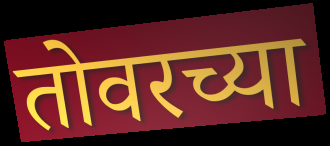
तोवरच्या